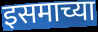
इसमाच्या